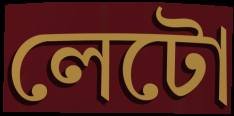
লেটো